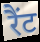
रैंट